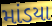
માંડયા